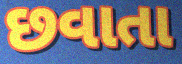
છવાતા